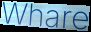
Whare